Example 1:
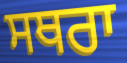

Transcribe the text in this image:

ਸਥਰਾ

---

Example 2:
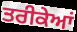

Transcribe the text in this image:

ਤਰੀਕੇਆਂ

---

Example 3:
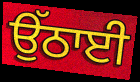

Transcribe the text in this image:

ਉੱਠਾਈ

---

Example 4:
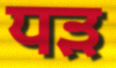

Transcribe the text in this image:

ਧੜ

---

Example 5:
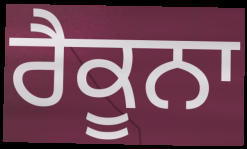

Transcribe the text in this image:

ਰੈਕੂਨਾ